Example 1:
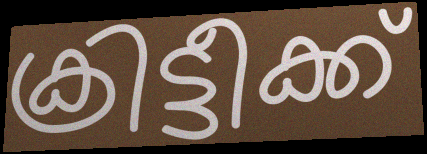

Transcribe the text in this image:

ക്രിട്ടീക്ക്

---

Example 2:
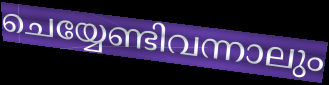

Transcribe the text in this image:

ചെയ്യേണ്ടിവന്നാലും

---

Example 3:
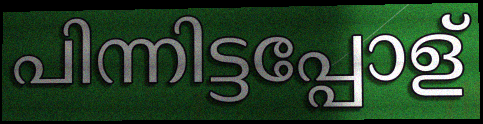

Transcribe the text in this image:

പിന്നിട്ടപ്പോള്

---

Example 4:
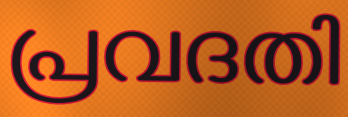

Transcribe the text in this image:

പ്രവദതി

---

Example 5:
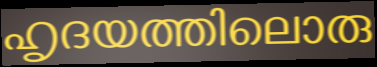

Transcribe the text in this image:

ഹൃദയത്തിലൊരു